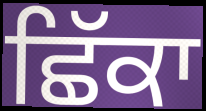
ਛਿੱਕਾ